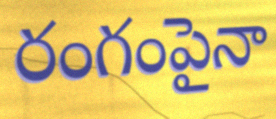
రంగంపైనా